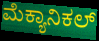
ಮೆಕ್ಯಾನಿಕಲ್